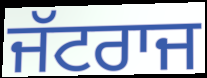
ਜੱਟਰਾਜ